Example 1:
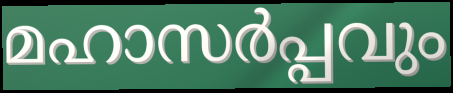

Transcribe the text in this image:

മഹാസർപ്പവും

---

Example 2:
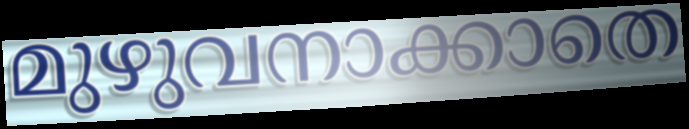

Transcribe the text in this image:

മുഴുവനാക്കാതെ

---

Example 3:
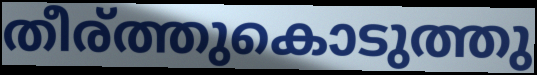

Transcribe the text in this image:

തീര്ത്തുകൊടുത്തു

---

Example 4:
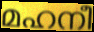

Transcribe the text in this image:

മഹനീ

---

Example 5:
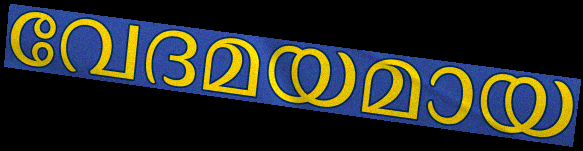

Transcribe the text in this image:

വേദമയമായ